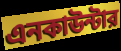
এনকাউন্টার